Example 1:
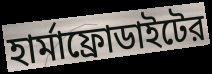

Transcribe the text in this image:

হার্মাফ্রোডাইটের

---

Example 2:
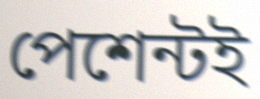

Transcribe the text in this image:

পেশেন্টই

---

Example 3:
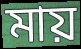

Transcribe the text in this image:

মায়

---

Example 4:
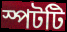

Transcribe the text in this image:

স্পটটি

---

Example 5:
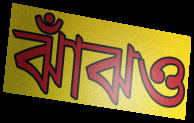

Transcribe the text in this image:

ঝাঁঝও